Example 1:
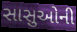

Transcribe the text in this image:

સાસુઓની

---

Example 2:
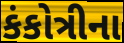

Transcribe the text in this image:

કંકોત્રીના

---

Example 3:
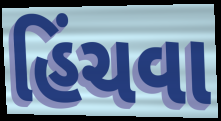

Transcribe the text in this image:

હિંચવા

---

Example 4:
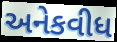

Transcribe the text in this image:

અનેકવીધ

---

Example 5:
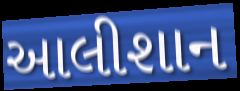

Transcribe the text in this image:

આલીશાન